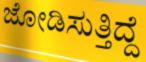
ಜೋಡಿಸುತ್ತಿದ್ದೆ